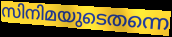
സിനിമയുടെതന്നെ